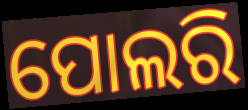
ପୋଲରି